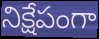
నిక్షేపంగా